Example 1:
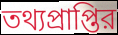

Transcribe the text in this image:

তথ্যপ্রাপ্তির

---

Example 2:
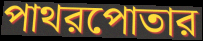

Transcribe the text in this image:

পাথরপোতার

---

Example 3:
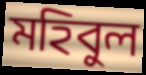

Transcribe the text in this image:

মহিবুল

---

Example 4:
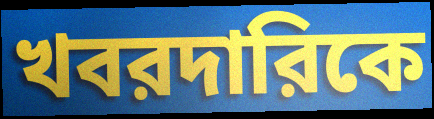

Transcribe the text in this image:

খবরদারিকে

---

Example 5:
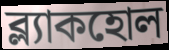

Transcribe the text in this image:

ব্ল্যাকহোল